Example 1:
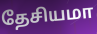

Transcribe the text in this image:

தேசியமா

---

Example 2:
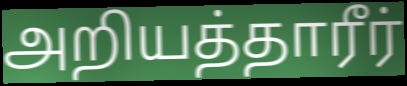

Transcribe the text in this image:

அறியத்தாரீர்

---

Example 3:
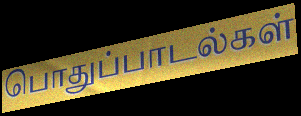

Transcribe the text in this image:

பொதுப்பாடல்கள்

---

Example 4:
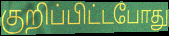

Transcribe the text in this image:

குறிப்பிட்டபோது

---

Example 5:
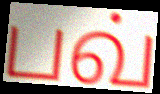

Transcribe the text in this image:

பவ்